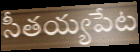
సీతయ్యపేట